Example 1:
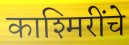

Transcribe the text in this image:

काश्मिरींचे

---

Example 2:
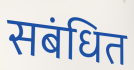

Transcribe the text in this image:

सबंधित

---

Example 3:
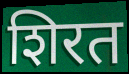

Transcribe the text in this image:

शिरत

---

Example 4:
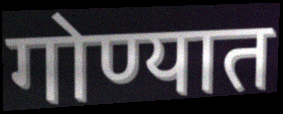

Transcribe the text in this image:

गोण्यात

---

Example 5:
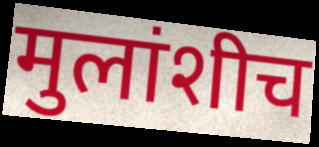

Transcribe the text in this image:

मुलांशीच